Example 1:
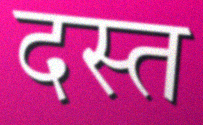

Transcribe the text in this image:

दस्त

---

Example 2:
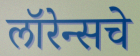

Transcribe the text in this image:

लॉरेन्सचे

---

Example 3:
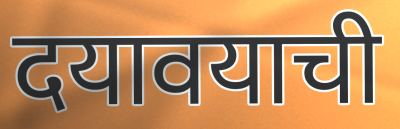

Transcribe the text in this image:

दयावयाची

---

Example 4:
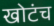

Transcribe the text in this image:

खोटंच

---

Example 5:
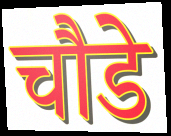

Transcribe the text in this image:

चौडे